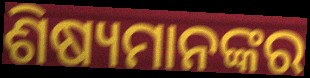
ଶିଷ୍ୟମାନଙ୍କର